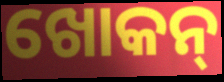
ଖୋକନ୍